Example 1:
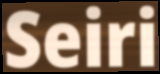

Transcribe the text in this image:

Seiri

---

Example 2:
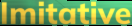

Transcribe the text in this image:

Imitative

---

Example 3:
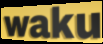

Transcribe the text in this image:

waku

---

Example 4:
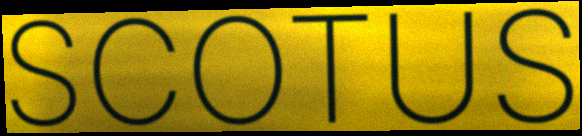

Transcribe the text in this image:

SCOTUS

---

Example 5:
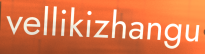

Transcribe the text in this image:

vellikizhangu